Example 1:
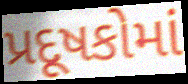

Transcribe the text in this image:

પ્રદૂષકોમાં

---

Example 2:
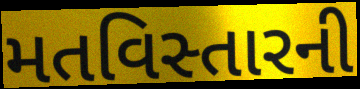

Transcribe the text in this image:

મતવિસ્તારની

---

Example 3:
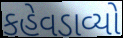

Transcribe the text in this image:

કહેવડાવ્યો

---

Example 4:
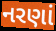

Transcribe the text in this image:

નરણાં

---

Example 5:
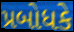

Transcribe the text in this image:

પ્રબોધકે